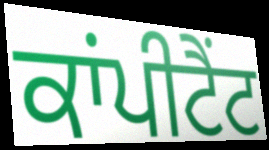
ਕਾਂਪੀਟੈਂਟ